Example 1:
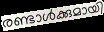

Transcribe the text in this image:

രണ്ടാൾക്കുമായി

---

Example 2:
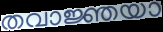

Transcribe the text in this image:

തവാജ്ഞയാ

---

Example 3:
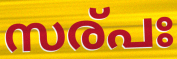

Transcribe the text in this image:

സര്പഃ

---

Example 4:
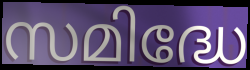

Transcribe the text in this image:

സമിദ്ധേ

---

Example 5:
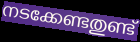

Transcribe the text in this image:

നടക്കേണ്ടതുണ്ട്